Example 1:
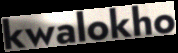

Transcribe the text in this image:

kwalokho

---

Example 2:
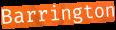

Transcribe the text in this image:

Barrington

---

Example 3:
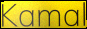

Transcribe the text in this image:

Kamal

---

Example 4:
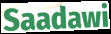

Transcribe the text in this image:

Saadawi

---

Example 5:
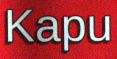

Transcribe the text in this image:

Kapu